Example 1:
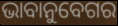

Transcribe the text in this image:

ଭାବାନୁବେଗର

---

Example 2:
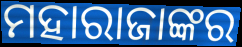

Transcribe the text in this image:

ମହାରାଜାଙ୍କର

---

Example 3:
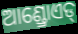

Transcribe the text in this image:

ଆଣ୍ଡ୍ରୋଏଡ୍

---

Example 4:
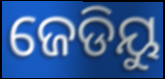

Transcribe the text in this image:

ଜେଡିୟୁ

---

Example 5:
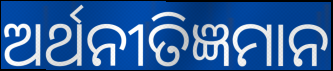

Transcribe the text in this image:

ଅର୍ଥନୀତିଜ୍ଞମାନ